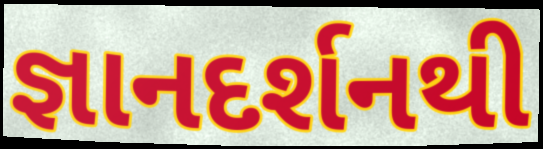
જ્ઞાનદર્શનથી